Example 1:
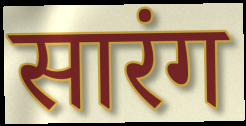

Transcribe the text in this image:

सारंग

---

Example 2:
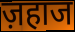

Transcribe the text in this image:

ज़हाज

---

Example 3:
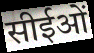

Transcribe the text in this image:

सीईओं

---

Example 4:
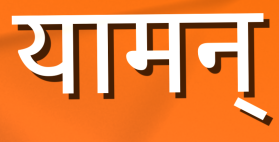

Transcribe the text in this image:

यामन्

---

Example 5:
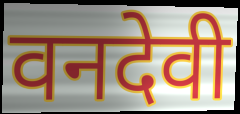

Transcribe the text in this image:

वनदेवी